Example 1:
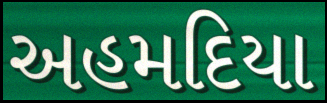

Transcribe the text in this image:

અહમદિયા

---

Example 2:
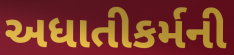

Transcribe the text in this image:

અધાતીકર્મની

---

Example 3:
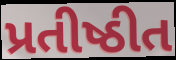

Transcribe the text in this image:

પ્રતીષ્ઠીત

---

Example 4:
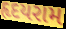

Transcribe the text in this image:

હૃદયરામ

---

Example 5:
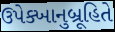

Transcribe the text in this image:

ઉપેક્ખાનુબ્રૂહિતે